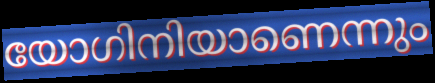
യോഗിനിയാണെന്നും